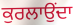
ਕੁਰਲਾਉਂਦਾ